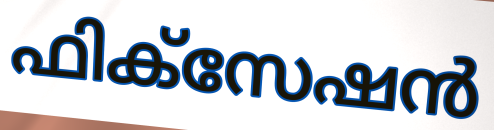
ഫിക്സേഷൻ